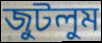
জুটলুম